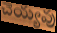
చెయ్యవు